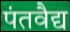
पंतवैद्य